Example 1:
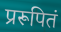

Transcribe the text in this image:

प्ररूपितं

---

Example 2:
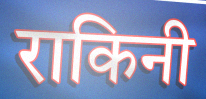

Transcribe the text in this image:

राकिनी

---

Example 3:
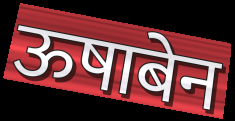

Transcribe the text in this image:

ऊषाबेन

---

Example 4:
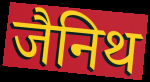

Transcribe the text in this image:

जैनिथ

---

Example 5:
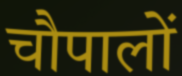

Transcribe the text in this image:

चौपालों